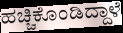
ಹಚ್ಚಿಕೊಂಡಿದ್ದಾಳೆ